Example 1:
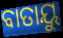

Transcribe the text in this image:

ବାତାୟୁ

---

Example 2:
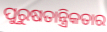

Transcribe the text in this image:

ପୁରୁଷତାନ୍ତ୍ରିକତାର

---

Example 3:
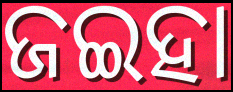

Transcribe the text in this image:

ଜଇହା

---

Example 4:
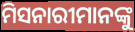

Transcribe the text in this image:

ମିସନାରୀମାନଙ୍କୁ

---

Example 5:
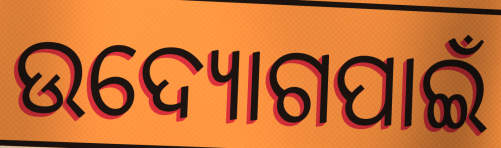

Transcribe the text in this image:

ଉଦ୍ୟୋଗପାଇଁ